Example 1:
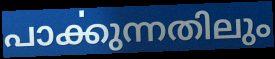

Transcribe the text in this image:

പാൎക്കുന്നതിലും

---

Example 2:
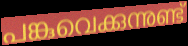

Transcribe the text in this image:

പങ്കുവെക്കുന്നുണ്ട്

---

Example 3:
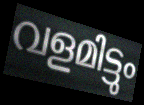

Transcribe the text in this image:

വളമിട്ടും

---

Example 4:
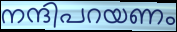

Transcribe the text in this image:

നന്ദിപറയണം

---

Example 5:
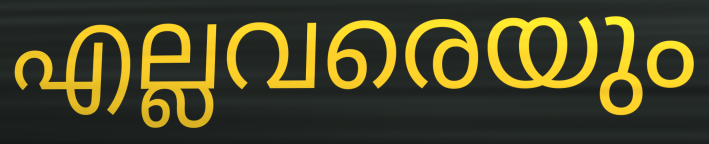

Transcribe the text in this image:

എല്ലവരെയും